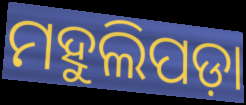
ମହୁଲିପଡ଼ା